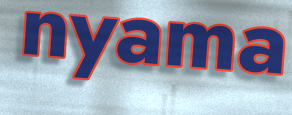
nyama